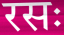
रसः